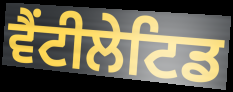
ਵੈਂਟੀਲੇਟਿਡ